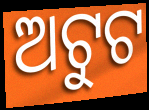
ଅଟୁଟ